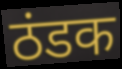
ठंडक